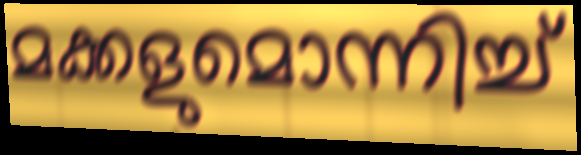
മക്കളുമൊന്നിച്ച്